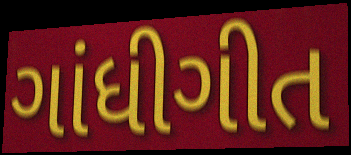
ગાંધીગીત